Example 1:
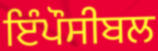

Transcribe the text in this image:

ਇੰਪੌਸੀਬਲ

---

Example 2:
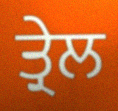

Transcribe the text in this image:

ਤ੍ਰੇਲ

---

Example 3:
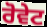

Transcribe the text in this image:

ਰੋਵੇਟ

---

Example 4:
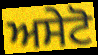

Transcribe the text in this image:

ਅਸੇਟੋ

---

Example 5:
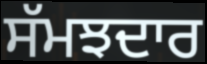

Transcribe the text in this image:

ਸੱਮਝਦਾਰ